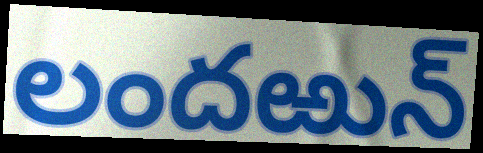
లందఱున్